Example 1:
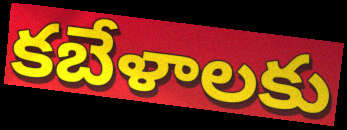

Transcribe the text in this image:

కబేళాలకు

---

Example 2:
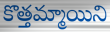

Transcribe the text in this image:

కొత్తమ్మాయిని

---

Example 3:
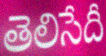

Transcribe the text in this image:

తెలిసేదీ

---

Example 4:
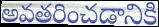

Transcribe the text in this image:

అవతరించడానికి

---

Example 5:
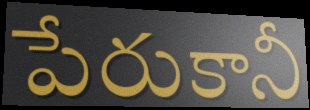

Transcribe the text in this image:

పేరుకానీ